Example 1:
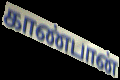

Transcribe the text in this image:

காண்பான்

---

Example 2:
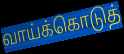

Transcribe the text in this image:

வாய்க்கொடுத்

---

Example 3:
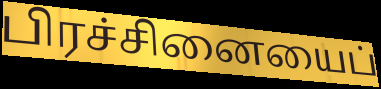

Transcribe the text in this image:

பிரச்சினையைப்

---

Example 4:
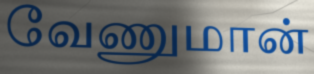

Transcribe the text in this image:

வேணுமான்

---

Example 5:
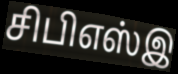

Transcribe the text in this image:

சிபிஎஸ்இ